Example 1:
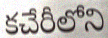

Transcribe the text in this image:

కచేరీలోని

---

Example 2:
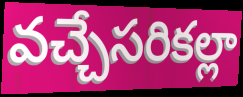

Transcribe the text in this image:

వచ్చేసరికల్లా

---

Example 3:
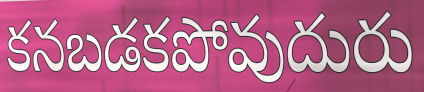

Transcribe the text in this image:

కనబడకపోవుదురు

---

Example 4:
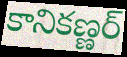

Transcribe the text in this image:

కానికణ్ణర్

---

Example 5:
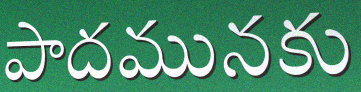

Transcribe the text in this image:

పాదమునకు